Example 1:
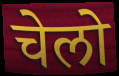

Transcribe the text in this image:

चेलो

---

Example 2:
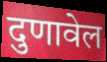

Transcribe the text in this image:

दुणावेल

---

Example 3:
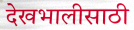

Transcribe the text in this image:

देखभालीसाठी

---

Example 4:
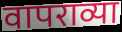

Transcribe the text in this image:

वापराव्या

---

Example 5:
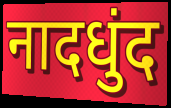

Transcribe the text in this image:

नादधुंद